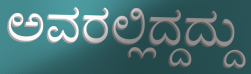
ಅವರಲ್ಲಿದ್ದದ್ದು